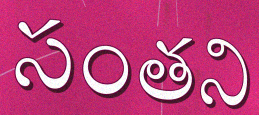
సంతని